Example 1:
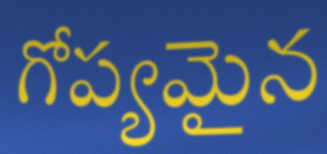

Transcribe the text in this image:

గోప్యమైన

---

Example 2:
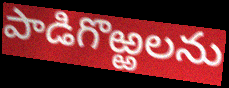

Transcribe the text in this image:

పాడిగొఱ్ఱలను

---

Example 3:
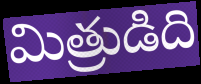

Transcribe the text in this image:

మిత్రుడిది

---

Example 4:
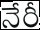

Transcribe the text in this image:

నేరీ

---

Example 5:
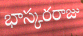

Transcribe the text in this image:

భాస్కరరాజు